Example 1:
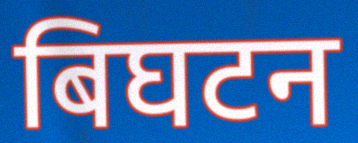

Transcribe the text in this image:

बिघटन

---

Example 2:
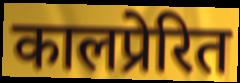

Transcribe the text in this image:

कालप्रेरित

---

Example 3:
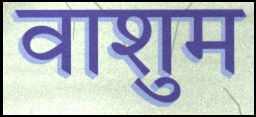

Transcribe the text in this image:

वाशुम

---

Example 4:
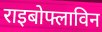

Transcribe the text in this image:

राइबोफ्लाविन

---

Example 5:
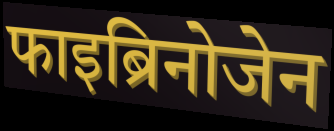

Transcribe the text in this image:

फाइब्रिनोजेन